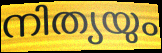
നിത്യയും